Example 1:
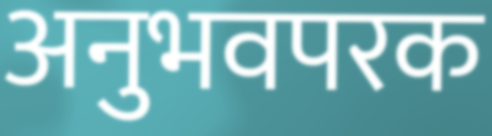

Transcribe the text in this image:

अनुभवपरक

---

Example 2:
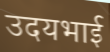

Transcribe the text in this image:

उदयभाई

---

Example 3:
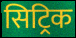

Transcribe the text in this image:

सिट्रिक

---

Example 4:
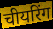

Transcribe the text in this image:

चीयरिंग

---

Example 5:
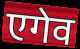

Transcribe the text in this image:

एगेव